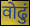
वोढुं